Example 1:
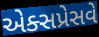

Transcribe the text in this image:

એક્સપ્રેસવે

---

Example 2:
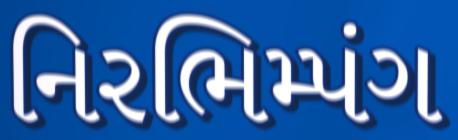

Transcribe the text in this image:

નિરભિમ્પંગ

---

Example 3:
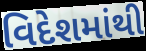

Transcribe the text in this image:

વિદેશમાંથી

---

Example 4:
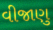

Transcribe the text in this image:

વીજાણુ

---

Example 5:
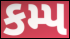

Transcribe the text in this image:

કમ્પ